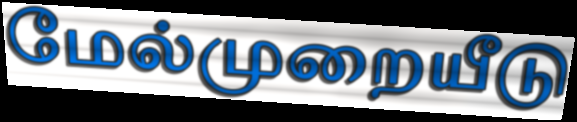
மேல்முறையீடு